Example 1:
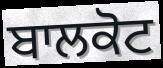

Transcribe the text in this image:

ਬਾਲਕੋਟ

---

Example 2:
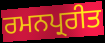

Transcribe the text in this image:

ਰਮਨਪ੍ਰਰੀਤ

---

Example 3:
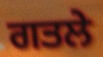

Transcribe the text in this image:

ਗਤਲੇ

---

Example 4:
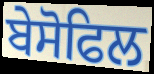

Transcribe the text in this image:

ਬੇਸੋਫਿਲ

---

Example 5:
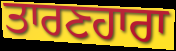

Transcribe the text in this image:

ਤਾਰਣਹਾਰਾ